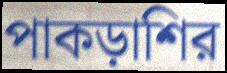
পাকড়াশির